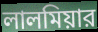
লালমিয়ার